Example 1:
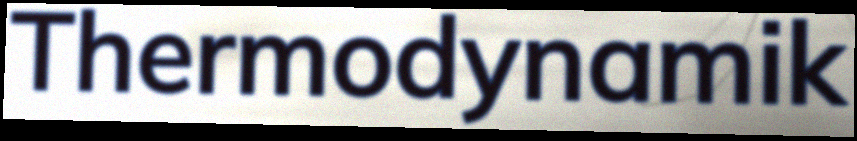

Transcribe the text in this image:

Thermodynamik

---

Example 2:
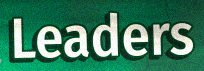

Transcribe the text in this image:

Leaders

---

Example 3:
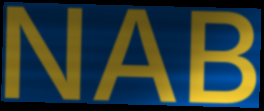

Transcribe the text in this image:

NAB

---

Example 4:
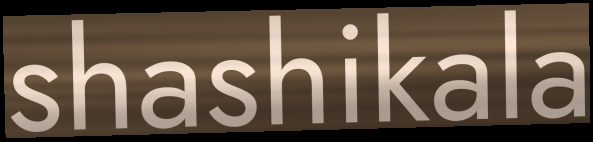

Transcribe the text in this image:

shashikala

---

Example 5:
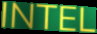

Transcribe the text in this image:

INTEL